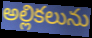
అల్లికలును